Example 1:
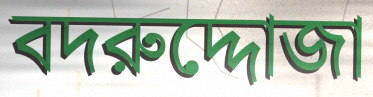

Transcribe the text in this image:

বদরুদ্দোজা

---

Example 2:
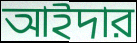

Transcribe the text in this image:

আইদার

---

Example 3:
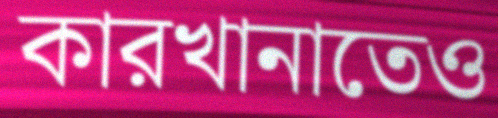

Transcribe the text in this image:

কারখানাতেও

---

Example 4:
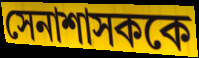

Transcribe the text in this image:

সেনাশাসককে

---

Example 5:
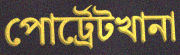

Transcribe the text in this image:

পোর্ট্রেটখানা